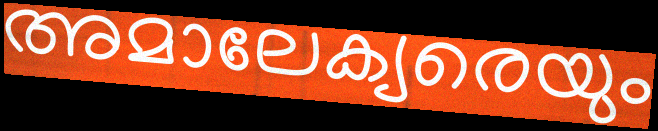
അമാലേക്യരെയും